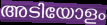
അടിയോളം